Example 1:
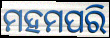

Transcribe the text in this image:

ମହମପରି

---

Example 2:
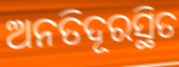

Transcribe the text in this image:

ଅନତିଦୂରସ୍ଥିତ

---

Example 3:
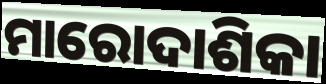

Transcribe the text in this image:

ମାରୋଦାଶିକା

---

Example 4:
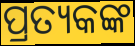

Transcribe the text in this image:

ପ୍ରତ୍ୟକଙ୍କ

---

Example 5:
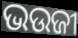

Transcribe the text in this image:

ଭଉଜୀ